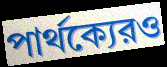
পার্থক্যেরও